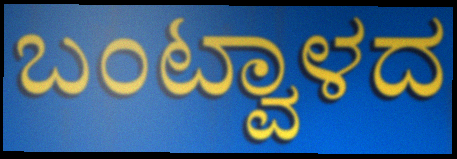
ಬಂಟ್ವಾಳದ